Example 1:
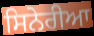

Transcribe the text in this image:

ਸਿਨੇਰੀਆ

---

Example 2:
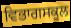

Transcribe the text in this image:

ਵਿਭਾਗਸਕੂਲ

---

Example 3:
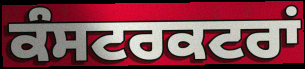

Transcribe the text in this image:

ਕੰਸਟਰਕਟਰਾਂ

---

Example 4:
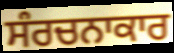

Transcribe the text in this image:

ਸੰਰਚਨਾਕਾਰ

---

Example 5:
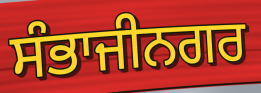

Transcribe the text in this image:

ਸੰਭਾਜੀਨਗਰ